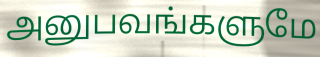
அனுபவங்களுமே